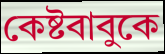
কেষ্টবাবুকে